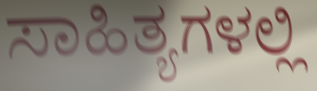
ಸಾಹಿತ್ಯಗಳಲ್ಲಿ